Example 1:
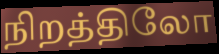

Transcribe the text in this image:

நிறத்திலோ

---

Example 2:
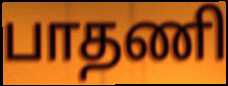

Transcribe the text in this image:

பாதணி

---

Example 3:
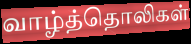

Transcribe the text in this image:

வாழ்த்தொலிகள்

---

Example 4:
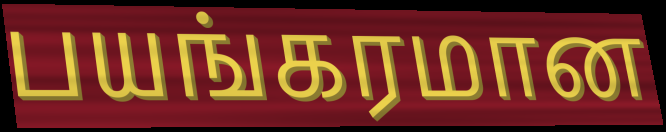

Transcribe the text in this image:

பயங்கரமான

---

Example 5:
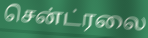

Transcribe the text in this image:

சென்ட்ரலை